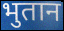
भुतान